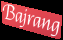
Bajrang